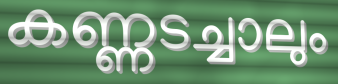
കണ്ണടച്ചാലും